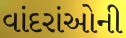
વાંદરાંઓની